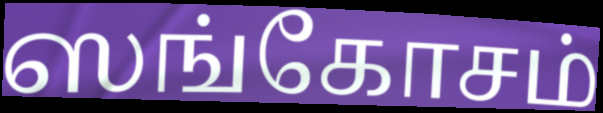
ஸங்கோசம்